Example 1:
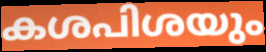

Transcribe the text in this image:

കശപിശയും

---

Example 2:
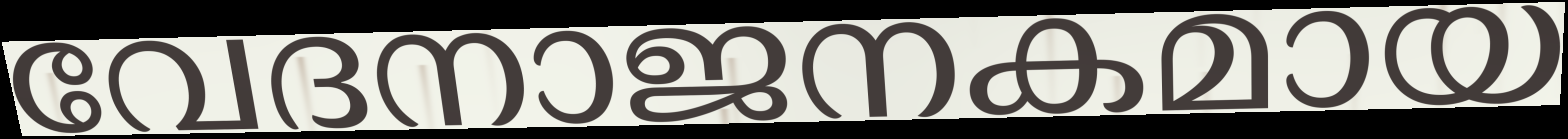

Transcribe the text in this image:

വേദനാജനകമായ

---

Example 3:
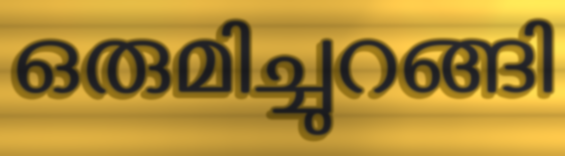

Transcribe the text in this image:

ഒരുമിച്ചുറങ്ങി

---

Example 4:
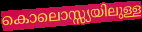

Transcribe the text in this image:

കൊലൊസ്സ്യയിലുള്ള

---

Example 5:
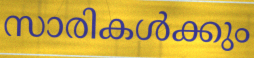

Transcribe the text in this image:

സാരികൾക്കും